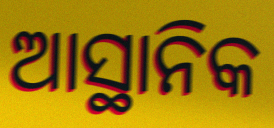
ଆସ୍ଥାନିକ